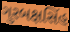
ગુરબક્ષસિંહ